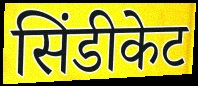
सिंडीकेट